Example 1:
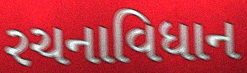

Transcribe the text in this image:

રચનાવિધાન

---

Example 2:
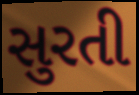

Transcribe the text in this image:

સુરતી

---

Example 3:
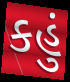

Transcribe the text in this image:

કહું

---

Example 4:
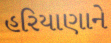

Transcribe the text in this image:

હરિયાણાને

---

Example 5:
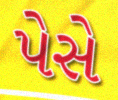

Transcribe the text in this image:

પેસે